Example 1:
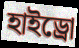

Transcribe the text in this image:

হাইড্রো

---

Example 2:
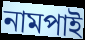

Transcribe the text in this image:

নামপাই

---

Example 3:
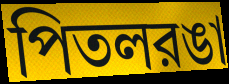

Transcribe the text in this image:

পিতলরঙা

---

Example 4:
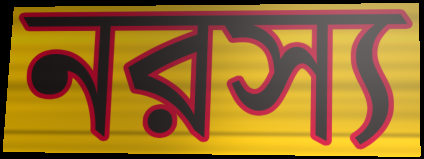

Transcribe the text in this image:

নরস্য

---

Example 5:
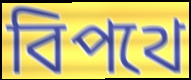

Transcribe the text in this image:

বিপথে